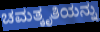
ಚಮತ್ಕೃತಿಯನ್ನು